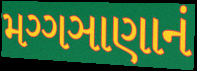
મગ્ગઞાણાનં